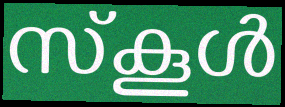
സ്‌കൂൾ